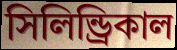
সিলিন্ড্রিকাল